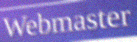
Webmaster